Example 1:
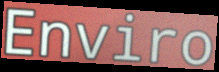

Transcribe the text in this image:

Enviro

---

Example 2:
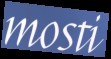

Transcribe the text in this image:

mosti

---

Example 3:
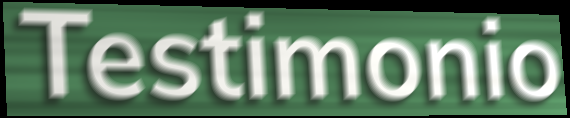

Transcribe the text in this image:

Testimonio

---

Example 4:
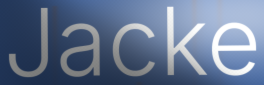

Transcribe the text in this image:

Jacke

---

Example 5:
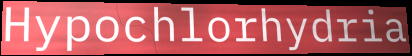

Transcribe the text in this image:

Hypochlorhydria